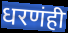
धरणंही